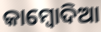
କାମ୍ବୋଦିଆ